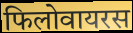
फिलोवायरस